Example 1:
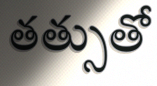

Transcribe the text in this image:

తత్సుతో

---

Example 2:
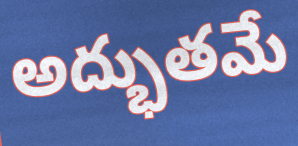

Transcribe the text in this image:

అద్భుతమే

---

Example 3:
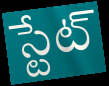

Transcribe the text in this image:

స్టేట్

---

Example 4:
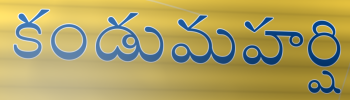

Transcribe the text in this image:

కండుమహర్షి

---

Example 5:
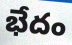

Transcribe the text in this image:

భేదం